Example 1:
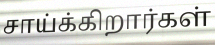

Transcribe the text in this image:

சாய்க்கிறார்கள்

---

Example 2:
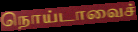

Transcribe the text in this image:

நொய்டாவைச்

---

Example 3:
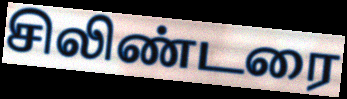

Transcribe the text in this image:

சிலிண்டரை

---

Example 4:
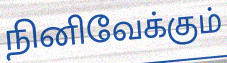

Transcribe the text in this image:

நினிவேக்கும்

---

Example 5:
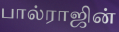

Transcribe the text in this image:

பால்ராஜின்